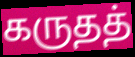
கருதத்